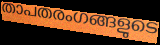
താപതരംഗങ്ങളുടെ